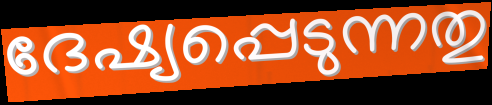
ദേഷ്യപ്പെടുന്നതു